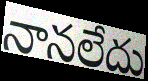
నానలేదు